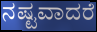
ನಷ್ಟವಾದರೆ